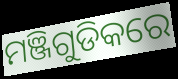
ମଞ୍ଜିଗୁଡିକରେ